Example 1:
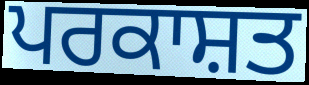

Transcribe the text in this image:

ਪਰਕਾਸ਼ਤ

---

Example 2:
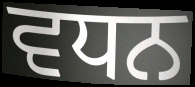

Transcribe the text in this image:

ਵਧਨ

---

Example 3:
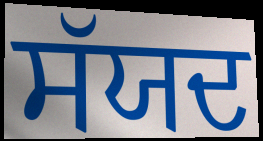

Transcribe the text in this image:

ਸੱਯਦ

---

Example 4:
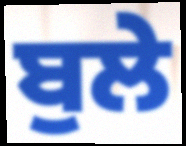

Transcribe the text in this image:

ਬੁਲੇ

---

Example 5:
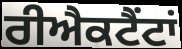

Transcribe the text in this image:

ਰੀਐਕਟੈਂਟਾਂ